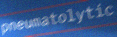
pneumatolytic